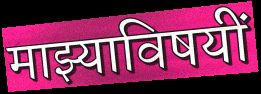
माझ्याविषयीं